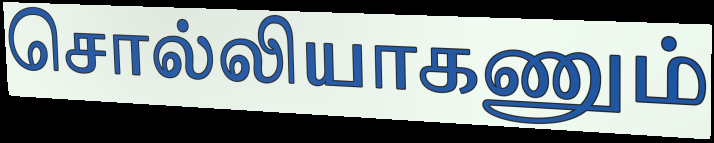
சொல்லியாகணும்